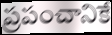
ప్రపంచానికే